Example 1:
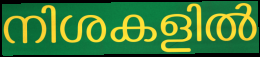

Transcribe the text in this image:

നിശകളിൽ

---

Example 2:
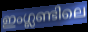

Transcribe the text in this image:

ഇംഗ്ലണ്ടിലെ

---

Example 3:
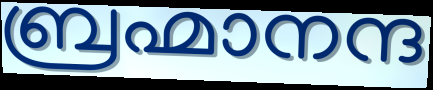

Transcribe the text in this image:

ബ്രഹ്മാനന്ദ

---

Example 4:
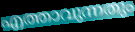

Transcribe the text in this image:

എത്താവുന്നതും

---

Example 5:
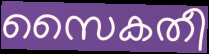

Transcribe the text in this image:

സൈകതീ